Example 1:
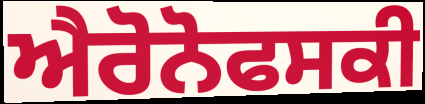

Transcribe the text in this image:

ਐਰੋਨੋਫਸਕੀ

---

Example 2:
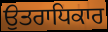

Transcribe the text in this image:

ਉਤਰਾਧਿਕਾਰ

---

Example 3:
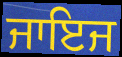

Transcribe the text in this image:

ਜਾਇਜ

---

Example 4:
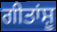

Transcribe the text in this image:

ਗੀਤਾਂਸ਼ੂ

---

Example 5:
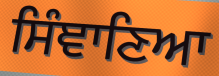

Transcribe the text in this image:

ਸਿੰਞਾਣਿਆ